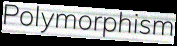
Polymorphism